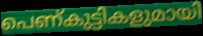
പെണ്കുട്ടികളുമായി